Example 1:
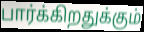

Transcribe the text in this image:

பார்க்கிறதுக்கும்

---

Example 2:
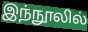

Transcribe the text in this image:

இந்நூலில்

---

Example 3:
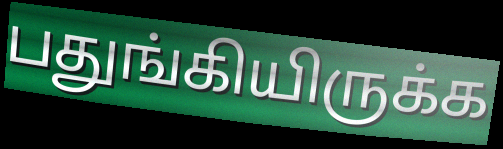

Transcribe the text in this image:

பதுங்கியிருக்க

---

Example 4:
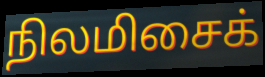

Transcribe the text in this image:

நிலமிசைக்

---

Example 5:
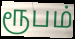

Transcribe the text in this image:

ரூபம்